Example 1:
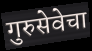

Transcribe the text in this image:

गुरुसेवेचा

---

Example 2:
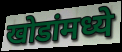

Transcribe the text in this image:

खोडांमध्ये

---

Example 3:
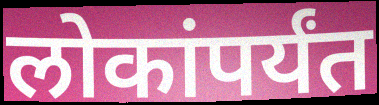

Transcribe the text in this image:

लोकांपर्यंत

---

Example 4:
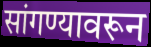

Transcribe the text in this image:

सांगण्यावरून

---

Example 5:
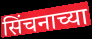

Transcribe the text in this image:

सिंचनाच्या